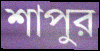
শাপুর